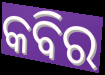
କବିର